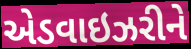
એડવાઇઝરીને